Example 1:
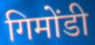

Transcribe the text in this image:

गिमोंडी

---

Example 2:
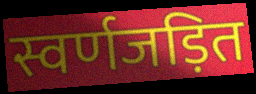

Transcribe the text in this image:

स्वर्णजड़ित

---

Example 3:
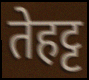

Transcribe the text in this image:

तेहट्ट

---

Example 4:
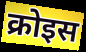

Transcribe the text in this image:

क्रोइस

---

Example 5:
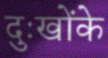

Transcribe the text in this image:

दुःखोंके